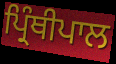
ਪ੍ਰਿੰਥੀਪਾਲ